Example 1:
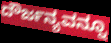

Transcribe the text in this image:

ದೌರ್ಜನ್ಯವನ್ನೂ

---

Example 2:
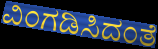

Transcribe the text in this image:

ವಿಂಗಡಿಸಿದಂತೆ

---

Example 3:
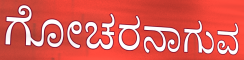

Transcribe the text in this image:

ಗೋಚರನಾಗುವ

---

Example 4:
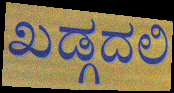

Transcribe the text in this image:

ಖಡ್ಗದಲಿ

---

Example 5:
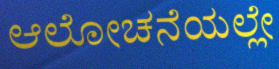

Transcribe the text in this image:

ಆಲೋಚನೆಯಲ್ಲೇ